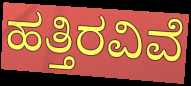
ಹತ್ತಿರವಿವೆ